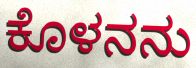
ಕೊಳನನು